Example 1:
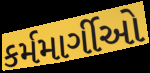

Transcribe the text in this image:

કર્મમાર્ગીઓ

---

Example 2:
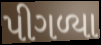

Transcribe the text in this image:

પીગળ્યા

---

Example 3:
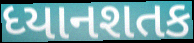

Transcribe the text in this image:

ધ્યાનશતક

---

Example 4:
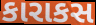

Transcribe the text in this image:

કારાકસ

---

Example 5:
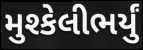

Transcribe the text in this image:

મુશ્કેલીભર્યું